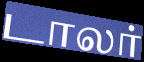
டாலர்